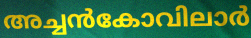
അച്ചൻകോവിലാർ